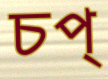
চপ্